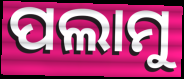
ପଲାମୁ